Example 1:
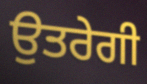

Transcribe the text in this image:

ਉਤਰੇਗੀ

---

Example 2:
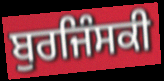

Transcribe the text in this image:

ਬੁਰਜਿੰਸਕੀ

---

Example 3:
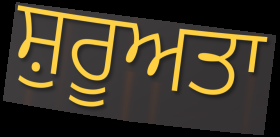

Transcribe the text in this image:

ਸ਼ੁਰੂਅਤਾ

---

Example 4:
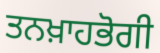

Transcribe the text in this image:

ਤਨਖ਼ਾਹਭੋਗੀ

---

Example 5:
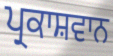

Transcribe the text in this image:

ਪ੍ਰਕਾਸ਼ਵਾਨ